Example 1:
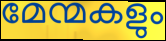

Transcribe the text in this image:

മേന്മകളും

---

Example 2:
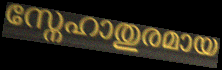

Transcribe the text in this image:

സ്നേഹാതുരമായ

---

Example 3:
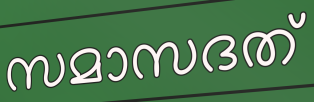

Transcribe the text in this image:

സമാസദത്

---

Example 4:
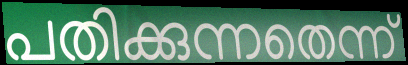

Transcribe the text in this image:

പതിക്കുന്നതെന്ന്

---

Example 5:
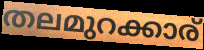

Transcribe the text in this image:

തലമുറക്കാര്